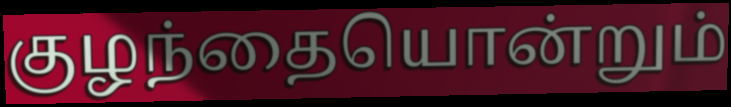
குழந்தையொன்றும்